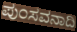
ಪುಂಸವನಾದಿ